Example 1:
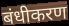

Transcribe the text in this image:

बंधीकरण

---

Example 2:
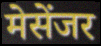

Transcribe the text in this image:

मेसेंजर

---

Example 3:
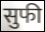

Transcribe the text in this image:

सुफी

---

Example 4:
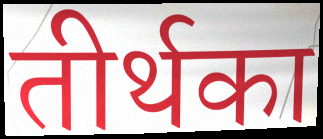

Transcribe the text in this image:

तीर्थका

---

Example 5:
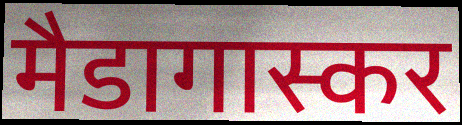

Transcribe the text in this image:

मैडागास्कर